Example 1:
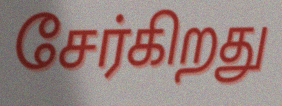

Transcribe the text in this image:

சேர்கிறது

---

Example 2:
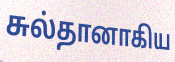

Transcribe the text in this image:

சுல்தானாகிய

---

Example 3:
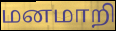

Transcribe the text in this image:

மனமாறி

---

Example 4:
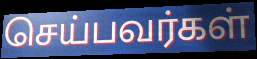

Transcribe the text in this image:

செய்பவர்கள்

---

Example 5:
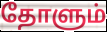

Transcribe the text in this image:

தோளும்